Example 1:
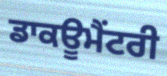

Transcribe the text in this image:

ਡਾਕਊਮੈਂਟਰੀ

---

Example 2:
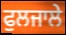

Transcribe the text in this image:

ਫੁਲਜਾਲੇ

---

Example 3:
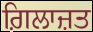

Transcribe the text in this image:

ਗ਼ਿਲਾਜ਼ਤ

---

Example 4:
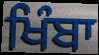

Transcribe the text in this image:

ਖਿੰਬਾ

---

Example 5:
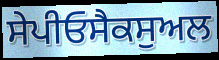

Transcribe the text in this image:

ਸੇਪੀਓਸੈਕਸੁਅਲ